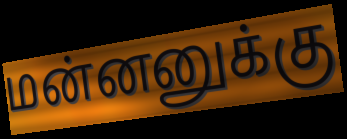
மன்னனுக்கு